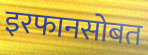
इरफानसोबत